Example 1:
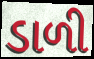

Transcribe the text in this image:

ડાળી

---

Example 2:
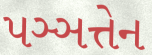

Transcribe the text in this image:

પઞ્ઞત્તેન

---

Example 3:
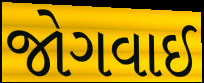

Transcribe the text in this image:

જોગવાઈ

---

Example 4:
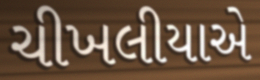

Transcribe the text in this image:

ચીખલીયાએ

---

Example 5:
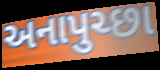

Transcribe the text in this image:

અનાપુચ્છા